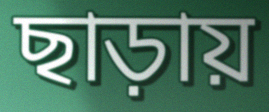
ছাড়ায়